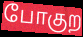
போகுற